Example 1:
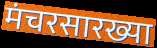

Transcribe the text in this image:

मंचरसारख्या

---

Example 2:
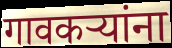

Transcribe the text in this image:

गावकऱ्यांना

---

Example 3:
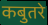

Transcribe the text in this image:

कबुतरे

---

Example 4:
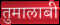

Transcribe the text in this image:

तुमालाबी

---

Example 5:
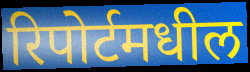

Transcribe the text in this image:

रिपोर्टमधील